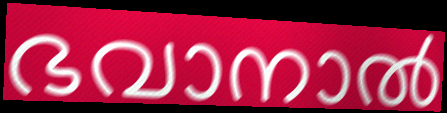
ഭവാനാൽ